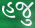
હજુ